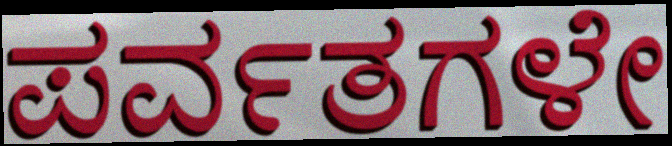
ಪರ್ವತಗಳೇ